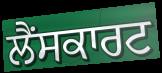
ਲੈਂਸਕਾਰਟ